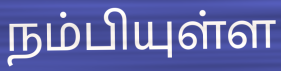
நம்பியுள்ள